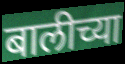
बालीच्या